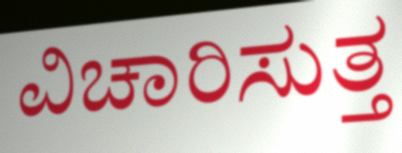
ವಿಚಾರಿಸುತ್ತ